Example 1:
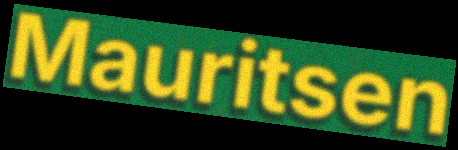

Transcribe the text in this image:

Mauritsen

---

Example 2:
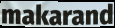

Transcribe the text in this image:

makarand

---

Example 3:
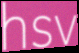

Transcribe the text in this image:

hsv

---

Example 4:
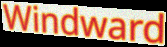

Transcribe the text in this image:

Windward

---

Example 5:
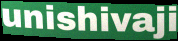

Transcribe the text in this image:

unishivaji